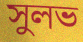
সুলভ